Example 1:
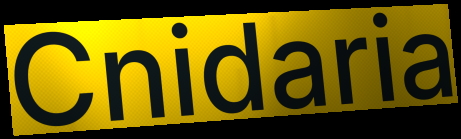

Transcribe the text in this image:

Cnidaria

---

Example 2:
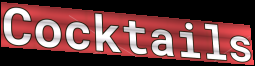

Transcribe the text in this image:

Cocktails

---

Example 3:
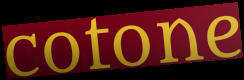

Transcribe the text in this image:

cotone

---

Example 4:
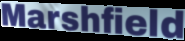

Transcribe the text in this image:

Marshfield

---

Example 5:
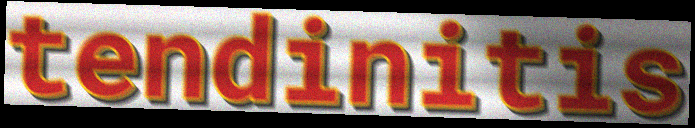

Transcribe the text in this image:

tendinitis